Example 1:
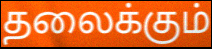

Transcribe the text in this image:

தலைக்கும்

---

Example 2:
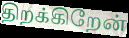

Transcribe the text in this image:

திறக்கிறேன்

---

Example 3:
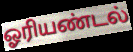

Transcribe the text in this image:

ஓரியண்டல்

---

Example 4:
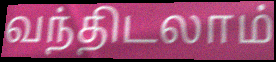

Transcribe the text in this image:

வந்திடலாம்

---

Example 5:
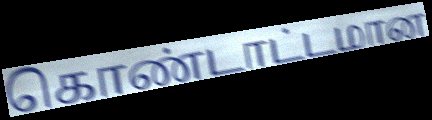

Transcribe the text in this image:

கொண்டாட்டமான